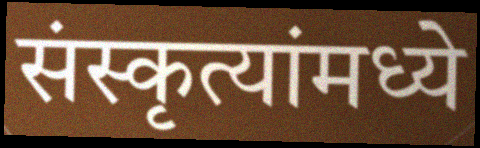
संस्कृत्यांमध्ये